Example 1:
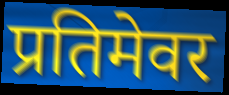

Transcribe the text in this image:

प्रतिमेवर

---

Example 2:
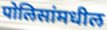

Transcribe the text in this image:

पोलिसांमधील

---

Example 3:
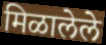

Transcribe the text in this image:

मिळालेले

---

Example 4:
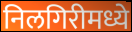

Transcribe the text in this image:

निलगिरीमध्ये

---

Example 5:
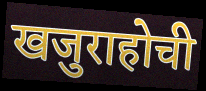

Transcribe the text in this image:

खजुराहोची